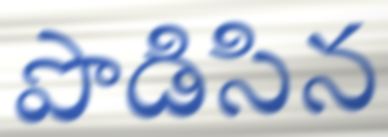
పొడిసిన